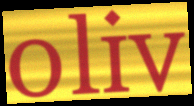
oliv